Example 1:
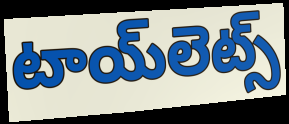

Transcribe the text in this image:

టాయ్‌లెట్స్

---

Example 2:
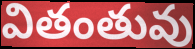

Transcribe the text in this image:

వితంతువు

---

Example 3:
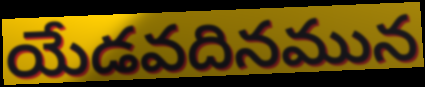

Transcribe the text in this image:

యేడవదినమున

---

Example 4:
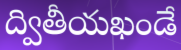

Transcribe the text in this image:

ద్వితీయఖండే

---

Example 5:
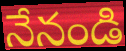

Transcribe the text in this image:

నేనండి